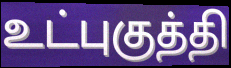
உட்புகுத்தி